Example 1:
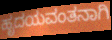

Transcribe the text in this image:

ಹೃದಯವಂತನಾಗಿ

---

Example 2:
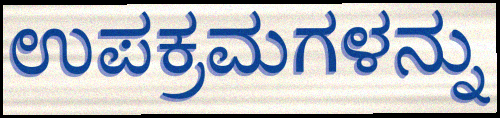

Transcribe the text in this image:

ಉಪಕ್ರಮಗಳನ್ನು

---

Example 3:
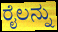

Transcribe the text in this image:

ರೈಲನ್ನು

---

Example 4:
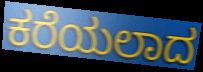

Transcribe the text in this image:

ಕರೆಯಲಾದ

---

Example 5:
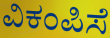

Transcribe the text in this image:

ವಿಕಂಪಿಸೆ